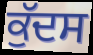
ਕੁੱਦਸ